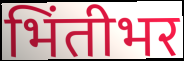
भिंतीभर